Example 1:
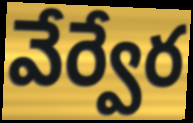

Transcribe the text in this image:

వేర్వేర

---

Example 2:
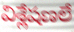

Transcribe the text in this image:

విశ్లేషణలే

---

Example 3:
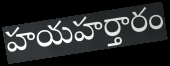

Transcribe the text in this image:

హయహర్తారం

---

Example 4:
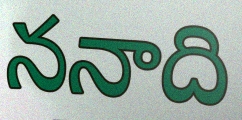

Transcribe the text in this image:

ననాది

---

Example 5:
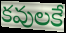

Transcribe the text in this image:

కవులకే